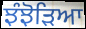
ਝੰਝੋੜਿਆ